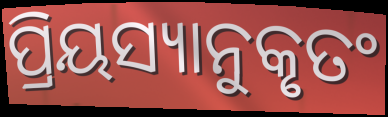
ପ୍ରିୟସ୍ୟାନୁକୃତଂ